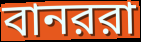
বানররা